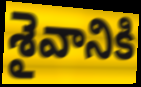
శైవానికి